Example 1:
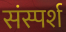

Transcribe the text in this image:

संस्पर्श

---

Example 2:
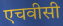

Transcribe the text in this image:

एचवीसी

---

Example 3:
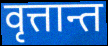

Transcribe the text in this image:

वृत्तान्त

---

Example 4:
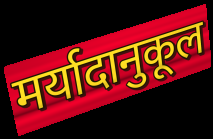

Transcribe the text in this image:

मर्यादानुकूल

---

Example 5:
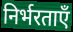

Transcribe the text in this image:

निर्भरताएँ